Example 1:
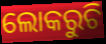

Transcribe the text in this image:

ଲୋକରୁଚି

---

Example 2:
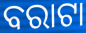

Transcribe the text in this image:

ବରାଟା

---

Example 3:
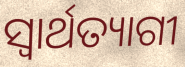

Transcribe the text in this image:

ସ୍ୱାର୍ଥତ୍ୟାଗୀ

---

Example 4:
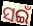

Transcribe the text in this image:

ସଇଁ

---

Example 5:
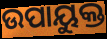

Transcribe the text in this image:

ଉପାୟୁକ୍ତ